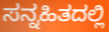
ಸನ್ನಹಿತದಲ್ಲಿ